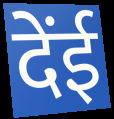
देंई